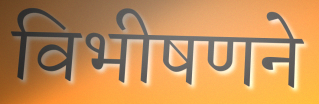
विभीषणने